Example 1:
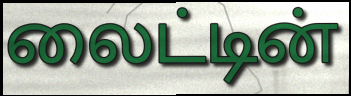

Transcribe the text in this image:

லைட்டின்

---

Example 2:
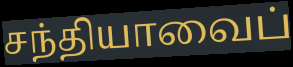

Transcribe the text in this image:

சந்தியாவைப்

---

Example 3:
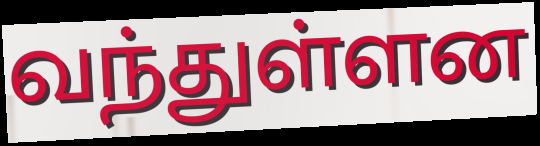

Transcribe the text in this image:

வந்துள்ளன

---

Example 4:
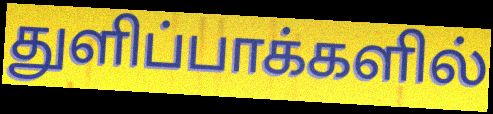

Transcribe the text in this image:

துளிப்பாக்களில்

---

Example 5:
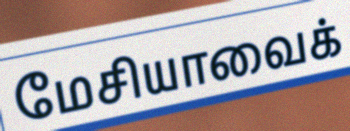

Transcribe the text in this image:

மேசியாவைக்